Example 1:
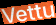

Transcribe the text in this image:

Vettu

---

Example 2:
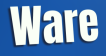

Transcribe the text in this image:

Ware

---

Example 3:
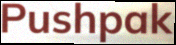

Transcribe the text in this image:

Pushpak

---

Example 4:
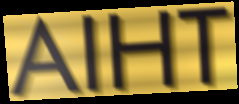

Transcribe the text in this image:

AIHT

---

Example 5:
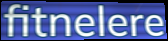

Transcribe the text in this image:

fitnelere